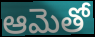
ఆమెతో